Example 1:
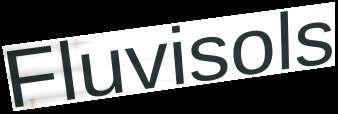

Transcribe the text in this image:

Fluvisols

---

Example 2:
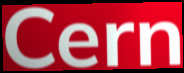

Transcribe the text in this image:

Cern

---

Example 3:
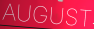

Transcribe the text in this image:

AUGUST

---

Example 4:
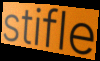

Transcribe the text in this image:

stifle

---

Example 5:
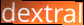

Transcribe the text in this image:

dextral